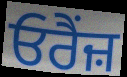
ਓਰੈਂਜ਼